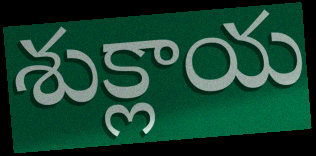
శుక్లాయ